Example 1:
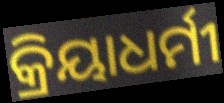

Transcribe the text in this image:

କ୍ରିୟାଧର୍ମୀ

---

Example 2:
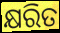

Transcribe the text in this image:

କ୍ଷରିତ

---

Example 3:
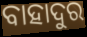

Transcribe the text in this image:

ବାହାଦୁର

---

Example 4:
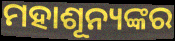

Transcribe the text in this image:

ମହାଶୂନ୍ୟଙ୍କର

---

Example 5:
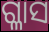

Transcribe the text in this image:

ଗ୍ଳାସ